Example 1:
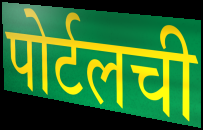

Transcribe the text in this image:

पोर्टलची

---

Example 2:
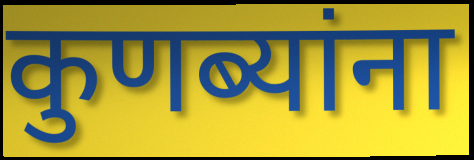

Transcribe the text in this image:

कुणब्यांना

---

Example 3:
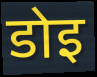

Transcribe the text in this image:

डोइ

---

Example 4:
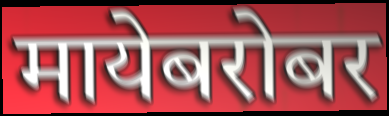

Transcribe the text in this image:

मायेबरोबर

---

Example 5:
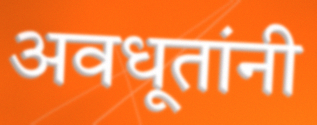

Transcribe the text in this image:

अवधूतांनी